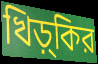
খিড়্‌কির